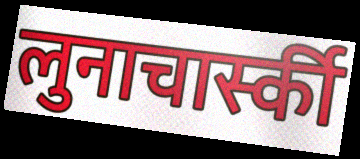
लुनाचार्स्की